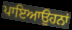
ਪਾਇਆਉਹਨਾਂ